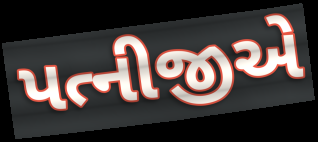
પત્નીજીએ